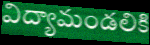
విద్యామండలికి